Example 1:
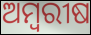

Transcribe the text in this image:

ଅମ୍ବରୀଷ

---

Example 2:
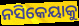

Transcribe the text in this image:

ନସିକେୟାକୁ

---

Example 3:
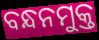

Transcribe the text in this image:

ବନ୍ଧନମୁକ୍ତ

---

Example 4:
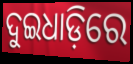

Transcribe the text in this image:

ଦୁଇଧାଡ଼ିରେ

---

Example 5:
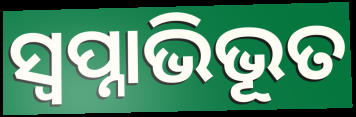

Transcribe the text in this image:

ସ୍ଵପ୍ନାଭିଭୂତ